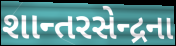
શાન્તરસેન્દ્રના